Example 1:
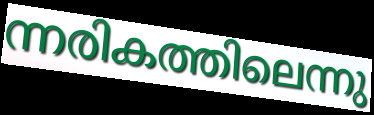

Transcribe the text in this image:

ന്നരികത്തിലെന്നു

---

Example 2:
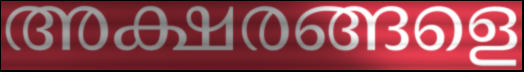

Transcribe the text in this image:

അക്ഷരങ്ങളെ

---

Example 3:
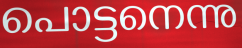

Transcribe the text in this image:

പൊട്ടനെന്നു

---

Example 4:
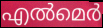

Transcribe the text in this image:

എൽമെർ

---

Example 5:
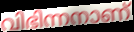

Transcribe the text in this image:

വിഭിന്നനാണ്